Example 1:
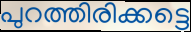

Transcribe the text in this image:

പുറത്തിരിക്കട്ടെ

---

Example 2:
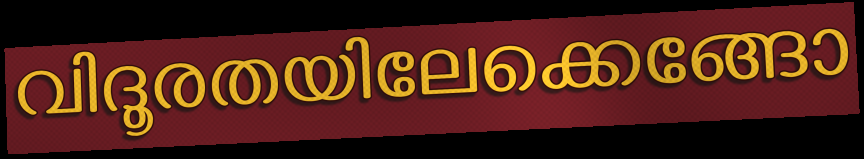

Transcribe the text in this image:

വിദൂരതയിലേക്കെങ്ങോ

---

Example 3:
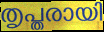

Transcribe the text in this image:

തൃപ്തരായി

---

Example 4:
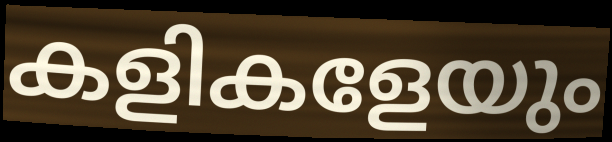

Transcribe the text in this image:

കളികളേയും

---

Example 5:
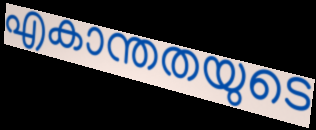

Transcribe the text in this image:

എകാന്തതയുടെ